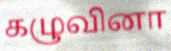
கழுவினா